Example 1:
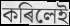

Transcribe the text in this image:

কৰিলেই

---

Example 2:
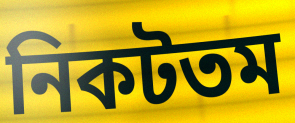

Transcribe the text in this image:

নিকটতম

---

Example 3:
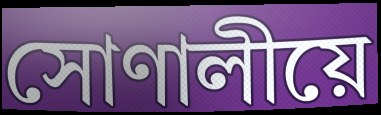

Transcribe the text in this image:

সোণালীয়ে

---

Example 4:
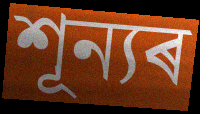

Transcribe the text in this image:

শূন্যৰ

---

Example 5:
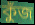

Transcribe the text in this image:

কুঁজ